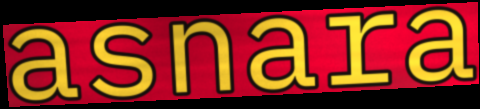
asnara